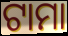
ଟାମା